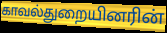
காவல்துறையினரின்